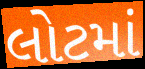
લોટમાં